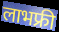
लाभफ्री